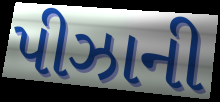
પીઝાની